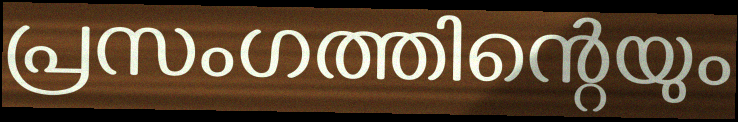
പ്രസംഗത്തിന്റെയും